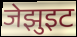
जेझुइट